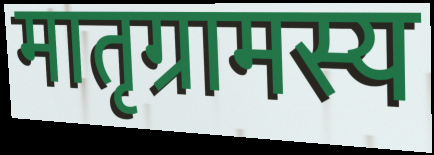
मातृग्रामस्य